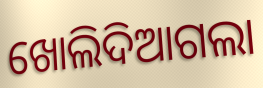
ଖୋଲିଦିଆଗଲା